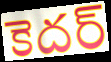
కెదర్